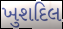
ખુશદિલ